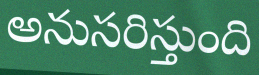
అనుసరిస్తుంది